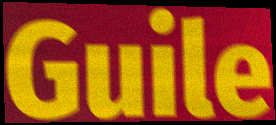
Guile